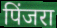
पिंजरा